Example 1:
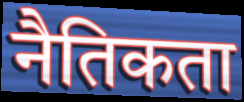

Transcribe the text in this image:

नैतिकता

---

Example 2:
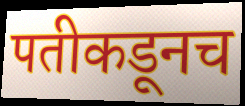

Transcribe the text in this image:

पतीकडूनच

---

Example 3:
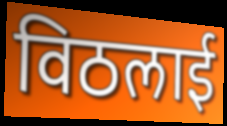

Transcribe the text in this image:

विठलाई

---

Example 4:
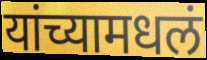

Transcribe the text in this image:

यांच्यामधलं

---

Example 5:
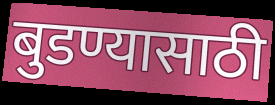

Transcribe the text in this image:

बुडण्यासाठी